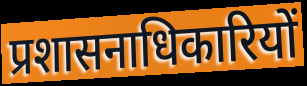
प्रशासनाधिकारियों